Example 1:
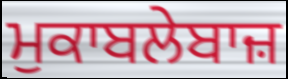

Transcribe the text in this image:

ਮੁਕਾਬਲੇਬਾਜ਼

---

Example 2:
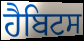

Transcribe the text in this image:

ਹੈਬਿਟਸ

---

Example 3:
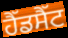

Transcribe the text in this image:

ਹੈੱਡਸੈੱਟ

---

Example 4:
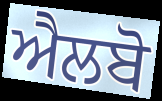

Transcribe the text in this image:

ਐਲਬੋ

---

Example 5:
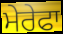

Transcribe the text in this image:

ਮੇਰੇਫਾ